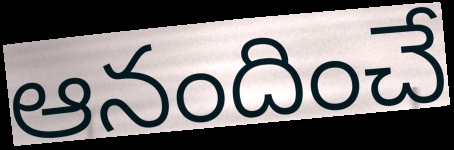
ఆనందించే